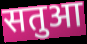
सतुआ